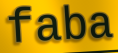
faba